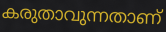
കരുതാവുന്നതാണ്